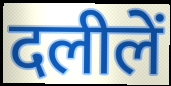
दलीलें